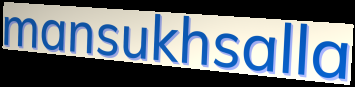
mansukhsalla